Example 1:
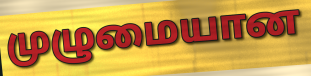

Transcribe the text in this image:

முழுமையான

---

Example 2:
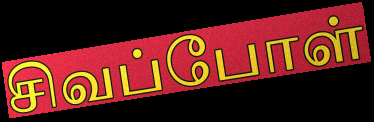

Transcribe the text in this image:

சிவப்போள்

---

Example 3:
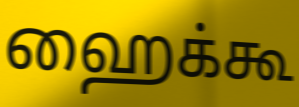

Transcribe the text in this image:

ஹைக்கூ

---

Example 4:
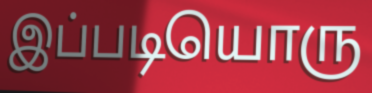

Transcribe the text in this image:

இப்படியொரு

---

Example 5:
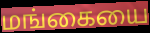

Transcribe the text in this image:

மங்கையை